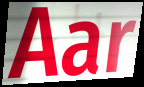
Aar